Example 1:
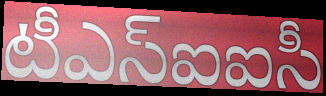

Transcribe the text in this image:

టీఎస్ఐఐసీ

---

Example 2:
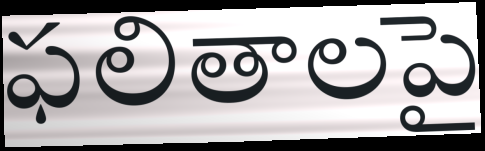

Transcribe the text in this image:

ఫలితాలపై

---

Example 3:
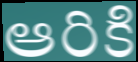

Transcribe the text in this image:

ఆరికి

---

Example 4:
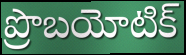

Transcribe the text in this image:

ప్రొబయోటిక్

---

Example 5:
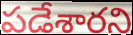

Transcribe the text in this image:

పడేశారని